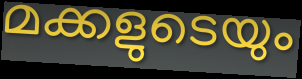
മക്കളുടെയും